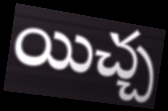
యిచ్చ